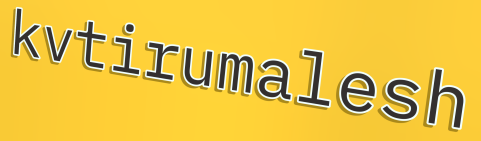
kvtirumalesh